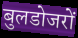
बुलडोजरों